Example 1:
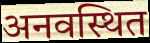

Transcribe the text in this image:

अनवस्थित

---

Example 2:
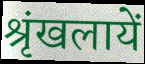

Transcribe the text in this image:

श्रृंखलायें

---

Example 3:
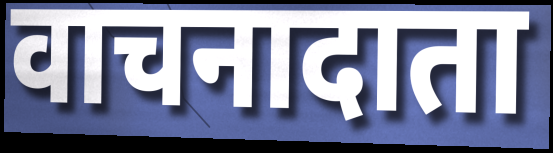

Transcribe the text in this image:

वाचनादाता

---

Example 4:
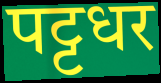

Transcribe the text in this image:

पट्टधर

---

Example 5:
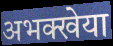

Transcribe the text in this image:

अभक्खेया